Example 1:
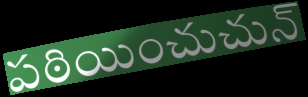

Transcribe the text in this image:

పఠియించుచున్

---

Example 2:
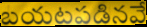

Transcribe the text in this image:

బయటపడినవే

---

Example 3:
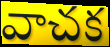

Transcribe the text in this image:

వాచక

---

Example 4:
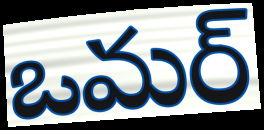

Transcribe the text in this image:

ఒమర్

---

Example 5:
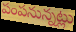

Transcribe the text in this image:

పంపనున్నట్లు